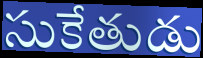
సుకేతుడు